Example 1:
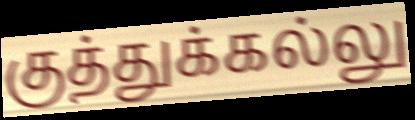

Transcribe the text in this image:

குத்துக்கல்லு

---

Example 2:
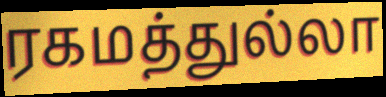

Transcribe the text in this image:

ரகமத்துல்லா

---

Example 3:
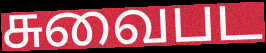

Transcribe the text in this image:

சுவைபட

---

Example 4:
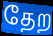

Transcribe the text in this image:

தேற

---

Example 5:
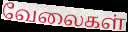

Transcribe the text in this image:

வேலைகள்